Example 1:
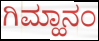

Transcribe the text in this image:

ಗಿಮ್ಹಾನಂ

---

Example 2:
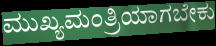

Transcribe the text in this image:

ಮುಖ್ಯಮಂತ್ರಿಯಾಗಬೇಕು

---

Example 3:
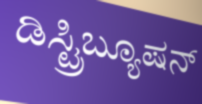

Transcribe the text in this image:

ಡಿಸ್ಟ್ರಿಬ್ಯೂಷನ್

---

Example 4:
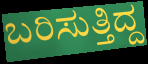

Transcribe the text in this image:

ಬರಿಸುತ್ತಿದ್ದ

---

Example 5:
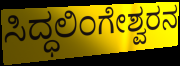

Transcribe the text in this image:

ಸಿದ್ಧಲಿಂಗೇಶ್ವರನ